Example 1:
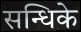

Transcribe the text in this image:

सन्धिके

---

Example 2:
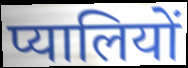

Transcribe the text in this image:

प्यालियों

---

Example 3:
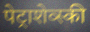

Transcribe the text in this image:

पेट्राशेव्स्की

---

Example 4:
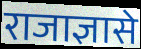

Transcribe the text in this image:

राजाज्ञासे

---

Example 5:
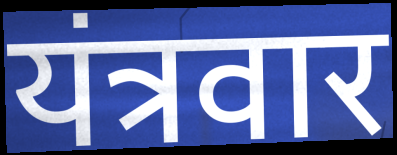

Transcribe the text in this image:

यंत्रवार